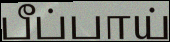
பீப்பாய்